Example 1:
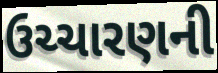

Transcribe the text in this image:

ઉચ્ચારણની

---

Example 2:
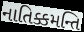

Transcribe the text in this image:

નાતિક્કમન્તિ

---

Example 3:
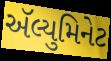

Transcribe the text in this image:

ઍલ્યુમિનેટ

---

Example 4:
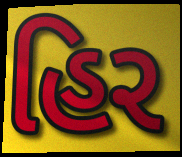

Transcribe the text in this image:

હિર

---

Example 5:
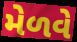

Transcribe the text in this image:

મેળવે